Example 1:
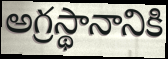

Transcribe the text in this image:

అగ్రస్థానానికి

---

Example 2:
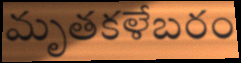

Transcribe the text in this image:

మృతకళేబరం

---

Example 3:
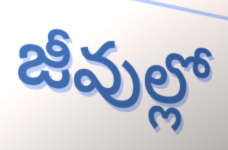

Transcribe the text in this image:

జీవుల్లో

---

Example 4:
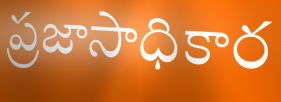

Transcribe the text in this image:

ప్రజాసాధికార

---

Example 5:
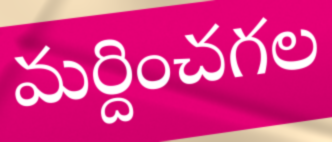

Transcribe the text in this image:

మర్దించగల